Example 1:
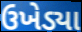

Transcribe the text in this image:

ઉખેડ્યા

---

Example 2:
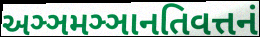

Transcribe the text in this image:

અઞ્ઞમઞ્ઞાનતિવત્તનં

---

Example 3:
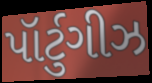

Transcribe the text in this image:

પૉર્ટુગીઝ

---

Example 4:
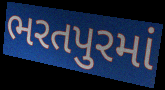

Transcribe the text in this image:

ભરતપુરમાં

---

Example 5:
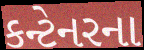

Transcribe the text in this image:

કન્ટેનરના